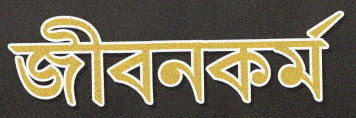
জীবনকর্ম